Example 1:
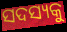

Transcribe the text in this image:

ସଦସ୍ୟକୁ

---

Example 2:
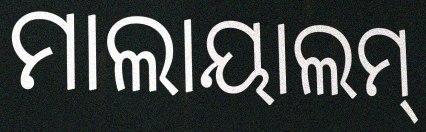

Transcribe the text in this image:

ମାଲାୟାଲମ୍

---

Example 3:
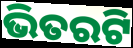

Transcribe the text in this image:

ଭିତରଟି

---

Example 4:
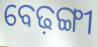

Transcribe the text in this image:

ବେଢ଼ଙ୍ଗୀ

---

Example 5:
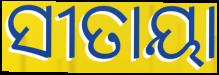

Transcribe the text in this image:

ସୀତାୟା